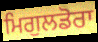
ਮਿਗੁਲਡੋਰਾ